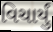
વિચાર્યું